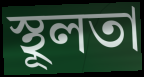
স্থূলতা